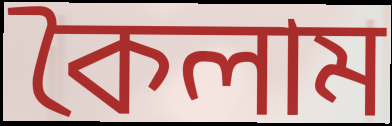
কৈলাম